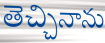
తెచ్చినాను